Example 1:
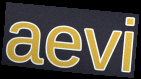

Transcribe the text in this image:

aevi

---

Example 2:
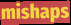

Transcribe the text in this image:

mishaps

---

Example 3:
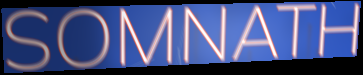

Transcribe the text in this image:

SOMNATH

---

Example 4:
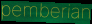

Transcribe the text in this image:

pemberian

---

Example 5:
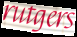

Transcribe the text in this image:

rutgers